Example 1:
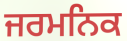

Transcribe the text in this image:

ਜਰਮਨਿਕ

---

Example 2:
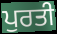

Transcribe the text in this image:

ਪੁਰਤੀ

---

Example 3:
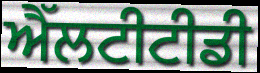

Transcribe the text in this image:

ਐੱਲਟੀਟੀਡੀ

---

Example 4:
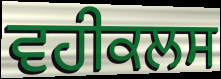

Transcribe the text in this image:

ਵਹੀਕਲਸ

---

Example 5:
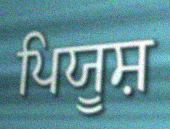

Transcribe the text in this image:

ਪਿਯੂਸ਼